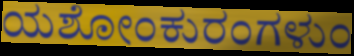
ಯಶೋಂಕುರಂಗಳುಂ